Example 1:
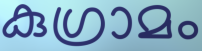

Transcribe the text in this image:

കുഗ്രാമം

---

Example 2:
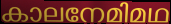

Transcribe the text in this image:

കാലനേമിമഥ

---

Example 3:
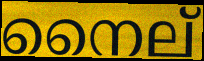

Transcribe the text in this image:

നൈല്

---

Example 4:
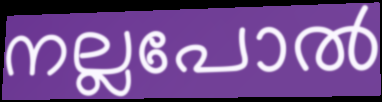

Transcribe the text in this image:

നല്ലപോൽ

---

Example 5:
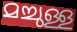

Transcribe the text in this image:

മച്ചുള്ള